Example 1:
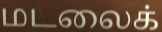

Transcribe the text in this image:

மடலைக்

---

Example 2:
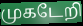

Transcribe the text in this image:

முகடேறி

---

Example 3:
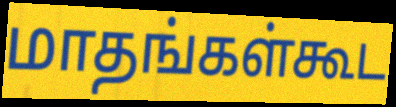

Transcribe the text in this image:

மாதங்கள்கூட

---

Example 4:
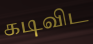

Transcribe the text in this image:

கடிவிட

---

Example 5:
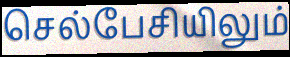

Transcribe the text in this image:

செல்பேசியிலும்